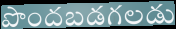
పొందబడగలడు